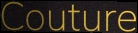
Couture